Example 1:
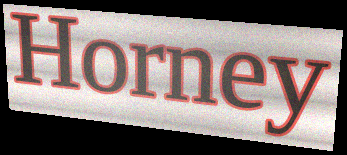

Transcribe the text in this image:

Horney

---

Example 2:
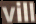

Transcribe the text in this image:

vill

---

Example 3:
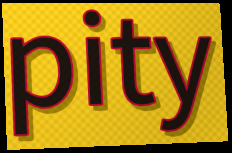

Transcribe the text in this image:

pity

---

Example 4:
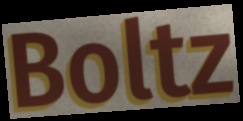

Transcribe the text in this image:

Boltz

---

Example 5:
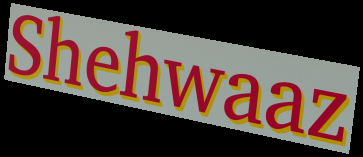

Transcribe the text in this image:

Shehwaaz